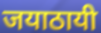
जयाठायी